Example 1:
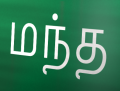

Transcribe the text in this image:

மந்த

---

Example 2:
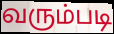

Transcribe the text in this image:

வரும்படி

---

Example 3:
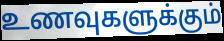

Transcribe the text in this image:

உணவுகளுக்கும்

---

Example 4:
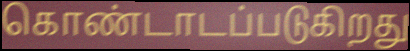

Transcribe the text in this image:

கொண்டாடப்படுகிறது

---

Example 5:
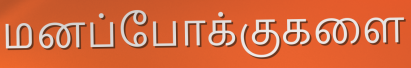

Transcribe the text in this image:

மனப்போக்குகளை